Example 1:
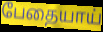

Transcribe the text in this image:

பேதையாய்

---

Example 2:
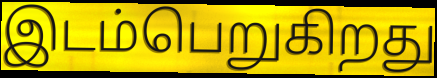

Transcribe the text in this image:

இடம்பெறுகிறது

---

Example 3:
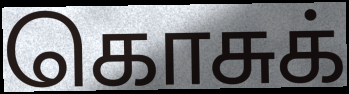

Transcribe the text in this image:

கொசுக்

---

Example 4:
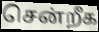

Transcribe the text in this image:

சென்றீக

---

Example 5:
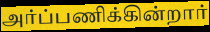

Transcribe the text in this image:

அர்ப்பணிக்கின்றார்